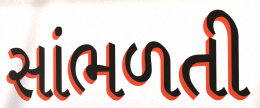
સાંભળતી